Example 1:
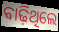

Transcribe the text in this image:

ବାଢ଼ିଥିଲେ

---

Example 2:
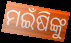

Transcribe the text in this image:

ମଇଁଷିଙ୍କୁ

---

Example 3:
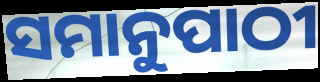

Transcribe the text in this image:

ସମାନୁପାଠୀ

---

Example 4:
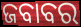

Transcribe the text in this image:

ଜବାବର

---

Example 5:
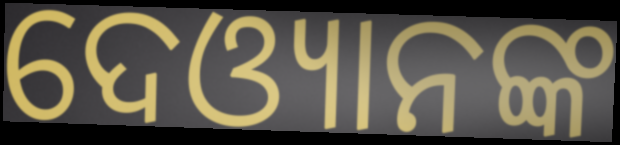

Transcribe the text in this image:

ଦେଓ୍ୟାନଙ୍କ